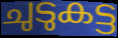
ചുടുകട്ട